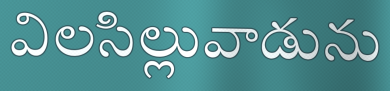
విలసిల్లువాడును